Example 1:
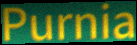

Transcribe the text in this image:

Purnia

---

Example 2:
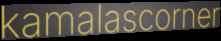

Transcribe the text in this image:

kamalascorner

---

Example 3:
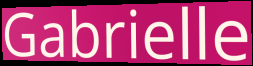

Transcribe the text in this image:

Gabrielle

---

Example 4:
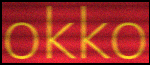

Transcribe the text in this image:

okko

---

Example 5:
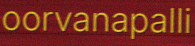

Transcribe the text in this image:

oorvanapalli